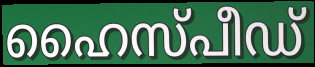
ഹൈസ്പീഡ്